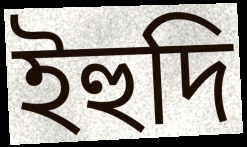
ইহুদি